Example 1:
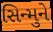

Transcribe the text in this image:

સિન્મુને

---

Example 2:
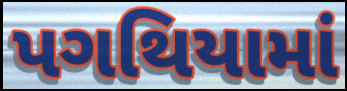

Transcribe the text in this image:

પગથિયામાં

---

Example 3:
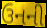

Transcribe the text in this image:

ઉનની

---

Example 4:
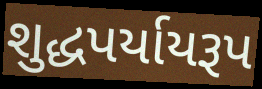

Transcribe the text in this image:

શુદ્ધપર્યાયરૂપ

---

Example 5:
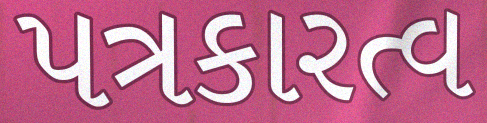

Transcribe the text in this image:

પત્રકારત્વ